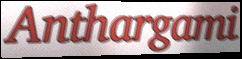
Anthargami